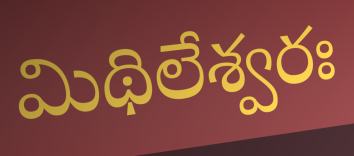
మిథిలేశ్వరః